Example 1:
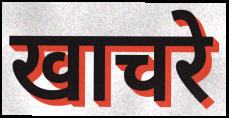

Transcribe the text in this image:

खाचरे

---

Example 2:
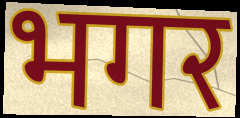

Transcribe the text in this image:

भगर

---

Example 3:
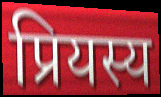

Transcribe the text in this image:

प्रियस्य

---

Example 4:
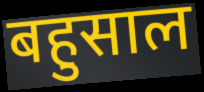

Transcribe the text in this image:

बहुसाल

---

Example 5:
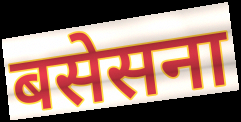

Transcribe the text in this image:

बसेसना